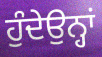
ਹੁੰਦੇਉਨ੍ਹਾਂ